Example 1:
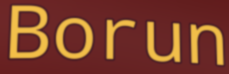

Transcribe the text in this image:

Borun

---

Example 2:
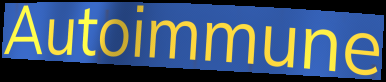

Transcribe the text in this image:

Autoimmune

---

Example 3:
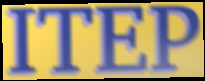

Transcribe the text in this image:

ITEP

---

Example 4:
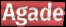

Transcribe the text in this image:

Agade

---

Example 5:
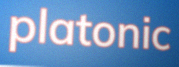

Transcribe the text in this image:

platonic